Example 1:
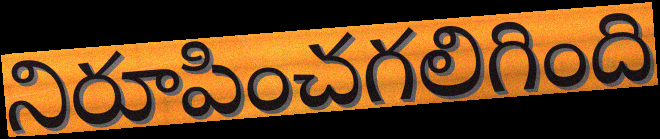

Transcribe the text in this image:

నిరూపించగలిగింది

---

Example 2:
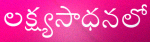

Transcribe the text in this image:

లక్ష్యసాధనలో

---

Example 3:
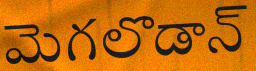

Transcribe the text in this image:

మెగలొడాన్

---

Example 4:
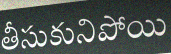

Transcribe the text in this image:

తీసుకునిపోయి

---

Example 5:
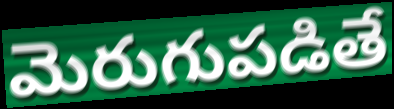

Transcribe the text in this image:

మెరుగుపడితే